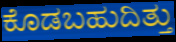
ಕೊಡಬಹುದಿತ್ತು